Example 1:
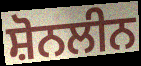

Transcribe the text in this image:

ਸ਼ੋਨਲੀਨ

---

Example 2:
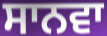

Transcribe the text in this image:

ਸਾਨਵਾ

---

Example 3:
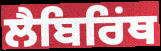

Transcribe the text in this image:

ਲੈਬਿਰਿਂਥ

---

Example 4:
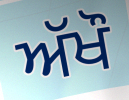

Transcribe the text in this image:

ਅੱਖੌ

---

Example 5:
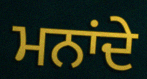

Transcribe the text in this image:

ਮਨਾਂਦੇ